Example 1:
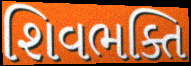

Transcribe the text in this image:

શિવભક્તિ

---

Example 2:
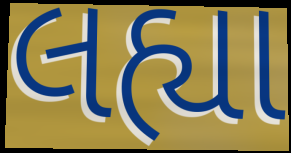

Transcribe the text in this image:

લહ્યા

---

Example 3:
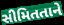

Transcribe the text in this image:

સીમિતતાને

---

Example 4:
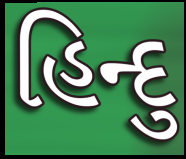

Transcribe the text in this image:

હિન્દુ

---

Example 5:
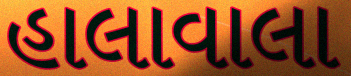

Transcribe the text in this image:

હાલાવાલા